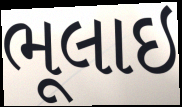
ભૂલાઇ